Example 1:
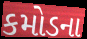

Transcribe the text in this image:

કમોડના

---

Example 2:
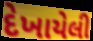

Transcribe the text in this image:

દેખાયેલી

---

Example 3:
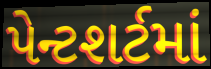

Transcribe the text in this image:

પેન્ટશર્ટમાં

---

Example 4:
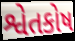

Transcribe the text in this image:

શ્વેતકોષ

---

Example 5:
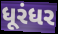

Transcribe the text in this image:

ધૂરંધર